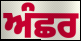
ਅੰਛਰ